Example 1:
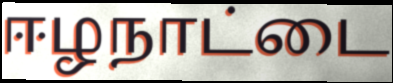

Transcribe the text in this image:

ஈழநாட்டை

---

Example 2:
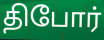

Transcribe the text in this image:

திபோர்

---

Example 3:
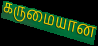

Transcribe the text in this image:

கருமையான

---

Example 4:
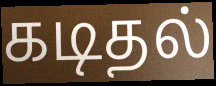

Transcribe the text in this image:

கடிதல்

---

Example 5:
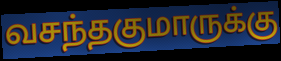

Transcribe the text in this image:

வசந்தகுமாருக்கு